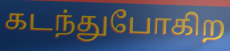
கடந்துபோகிற